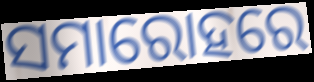
ସମାରୋହରେ